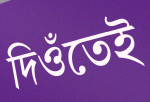
দিওঁতেই